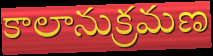
కాలానుక్రమణ